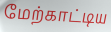
மேற்காட்டிய